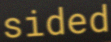
sided